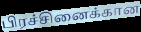
பிரச்சினைக்கான